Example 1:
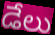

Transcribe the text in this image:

డేలు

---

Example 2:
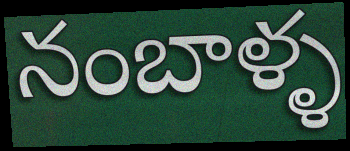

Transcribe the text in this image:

నంబాళ్ళ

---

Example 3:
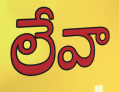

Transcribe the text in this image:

లేవా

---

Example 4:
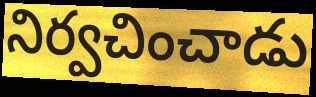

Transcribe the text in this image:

నిర్వచించాడు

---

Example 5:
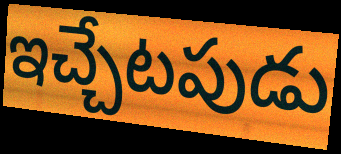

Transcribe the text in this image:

ఇచ్చేటపుడు